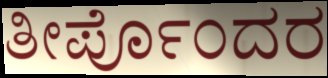
ತೀರ್ಪೊಂದರ